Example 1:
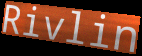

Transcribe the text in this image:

Rivlin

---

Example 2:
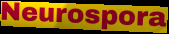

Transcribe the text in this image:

Neurospora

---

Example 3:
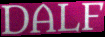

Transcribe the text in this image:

DALF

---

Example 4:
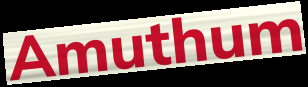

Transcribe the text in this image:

Amuthum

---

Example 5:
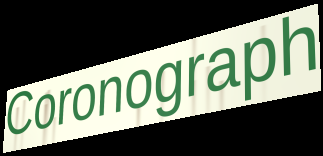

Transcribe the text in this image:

Coronograph